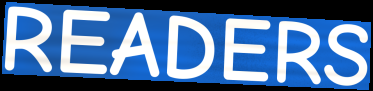
READERS